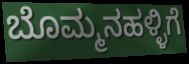
ಬೊಮ್ಮನಹಳ್ಳಿಗೆ